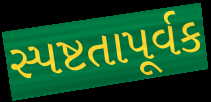
સ્પષ્ટતાપૂર્વક